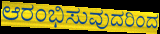
ಆರಂಭಿಸುವುದರಿಂದ